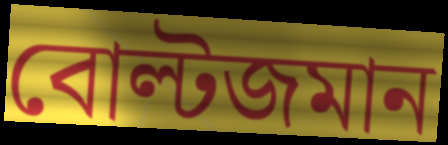
বোল্টজমান